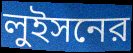
লুইসনের